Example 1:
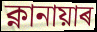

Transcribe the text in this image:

ক্নানায়াৰ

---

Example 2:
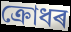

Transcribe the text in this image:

ক্ৰোধৰ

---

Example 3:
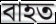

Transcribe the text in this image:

বাহত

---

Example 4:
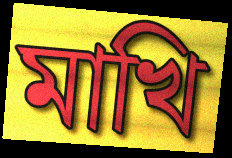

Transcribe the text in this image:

মাখি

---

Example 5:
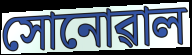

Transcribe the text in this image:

সোনোৱাল